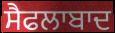
ਸੈਫਲਾਬਾਦ